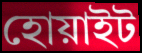
হোয়াইট